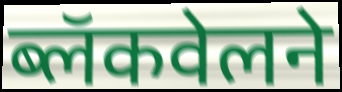
ब्लॅकवेलने